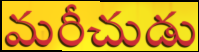
మరీచుడు